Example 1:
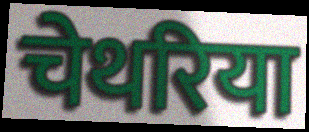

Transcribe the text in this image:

चेथरिया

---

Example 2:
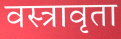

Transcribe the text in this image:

वस्त्रावृता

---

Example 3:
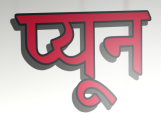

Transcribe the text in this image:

प्यून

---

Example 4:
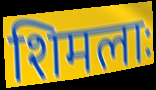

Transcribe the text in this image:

शिमलाः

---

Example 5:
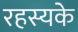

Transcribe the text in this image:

रहस्यके